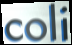
coli